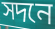
সদনে